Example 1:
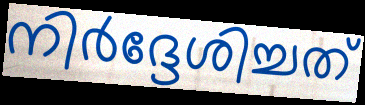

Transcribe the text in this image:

നിർദ്ദേശിച്ചത്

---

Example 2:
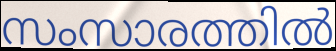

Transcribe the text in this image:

സംസാരത്തിൽ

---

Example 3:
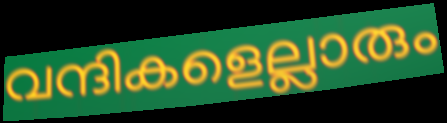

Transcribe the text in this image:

വന്ദികളെല്ലാരും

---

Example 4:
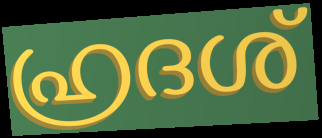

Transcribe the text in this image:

ഹ്രദശ്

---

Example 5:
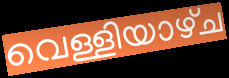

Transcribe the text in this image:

വെള്ളിയാഴ്‌ച